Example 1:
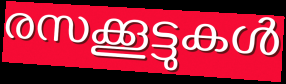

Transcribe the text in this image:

രസക്കൂട്ടുകൾ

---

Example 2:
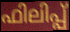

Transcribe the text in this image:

ഫിലിപ്പ്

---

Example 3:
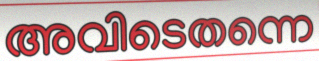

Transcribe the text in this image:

അവിടെതന്നെ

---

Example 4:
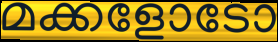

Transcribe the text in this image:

മക്കളോടോ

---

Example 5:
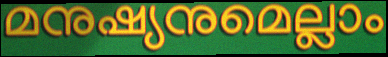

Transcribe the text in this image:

മനുഷ്യനുമെല്ലാം